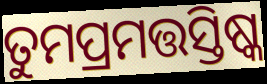
ତୁମପ୍ରମତ୍ତସ୍ତିଷ୍କ